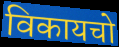
विकायचो